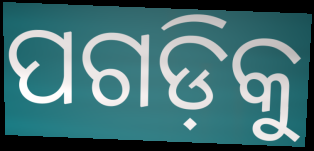
ପଗଡ଼ିକୁ